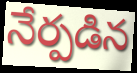
నేర్పడిన